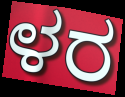
ಳರ